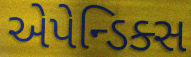
એપેન્ડિક્સ